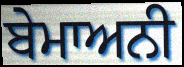
ਬੇਮਾਅਨੀ